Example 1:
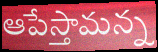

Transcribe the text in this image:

ఆపేస్తామన్న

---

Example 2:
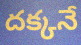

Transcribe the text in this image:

దక్కనే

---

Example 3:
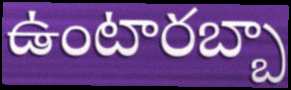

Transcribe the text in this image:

ఉంటారబ్బా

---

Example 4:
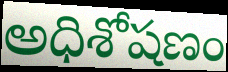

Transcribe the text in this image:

అధిశోషణం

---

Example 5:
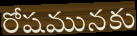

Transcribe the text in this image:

రోషమునకు